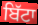
ਬਿੱਟਾ